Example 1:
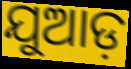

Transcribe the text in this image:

ଯୁଆଡ଼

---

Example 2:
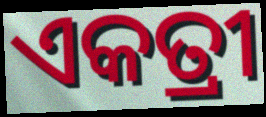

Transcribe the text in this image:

ଏକତ୍ରୀ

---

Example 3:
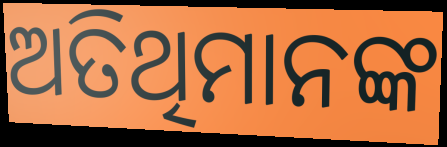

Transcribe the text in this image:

ଅତିଥିମାନଙ୍କ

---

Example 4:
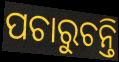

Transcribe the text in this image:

ପଚାରୁଚନ୍ତି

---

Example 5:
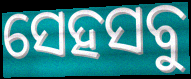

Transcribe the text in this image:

ସେହସବୁ